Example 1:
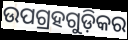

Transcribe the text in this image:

ଉପଗ୍ରହଗୁଡ଼ିକର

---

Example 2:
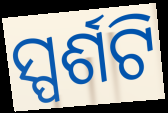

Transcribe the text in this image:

ସ୍ପର୍ଶଟି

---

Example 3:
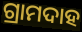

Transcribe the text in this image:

ଗ୍ରାମଦାହ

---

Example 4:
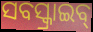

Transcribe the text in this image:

ସବସ୍କ୍ରାଇବ୍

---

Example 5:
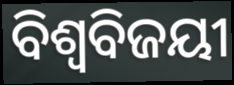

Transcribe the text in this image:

ବିଶ୍ବବିଜୟୀ